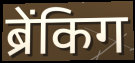
ब्रेंकिग